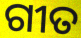
ଗୀତ